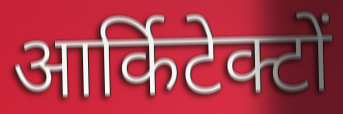
आर्किटेक्टों